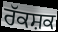
ਰੱਕਸ਼ਕ